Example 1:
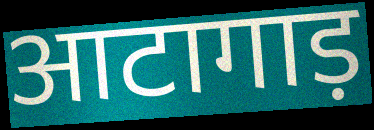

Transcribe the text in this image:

आटागाड़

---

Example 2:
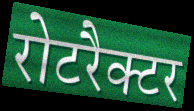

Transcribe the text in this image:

रोटरैक्टर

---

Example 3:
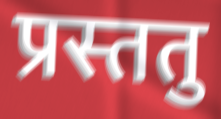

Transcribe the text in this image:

प्रस्ततु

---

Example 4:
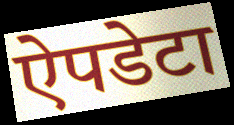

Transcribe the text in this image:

ऐपडेटा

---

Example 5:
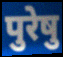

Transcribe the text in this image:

पुरेषु